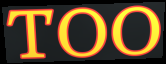
TOO